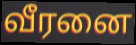
வீரனை